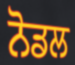
ਨੋਡਲ